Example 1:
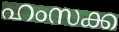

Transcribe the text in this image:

ഹംസക്ക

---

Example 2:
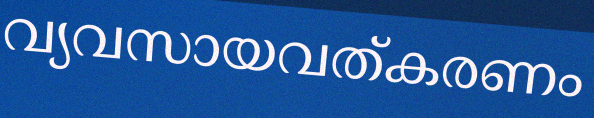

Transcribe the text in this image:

വ്യവസായവത്കരണം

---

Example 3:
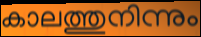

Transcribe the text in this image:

കാലത്തുനിന്നും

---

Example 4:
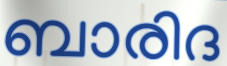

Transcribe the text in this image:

ബാരിദ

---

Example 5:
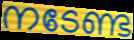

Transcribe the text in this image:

നടേണ്ട